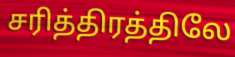
சரித்திரத்திலே